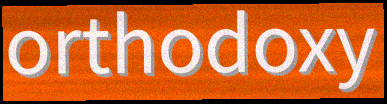
orthodoxy